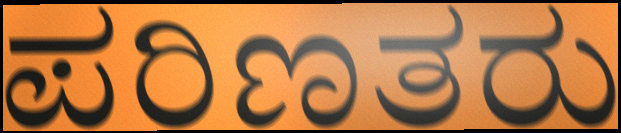
ಪರಿಣತರು